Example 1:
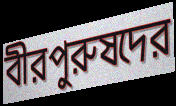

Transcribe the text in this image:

বীরপুরুষদের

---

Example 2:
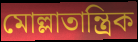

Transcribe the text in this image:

মোল্লাতান্ত্রিক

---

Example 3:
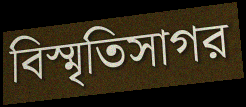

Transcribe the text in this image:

বিস্মৃতিসাগর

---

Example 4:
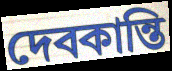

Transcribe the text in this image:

দেবকান্তি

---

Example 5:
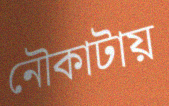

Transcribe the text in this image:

নৌকাটায়